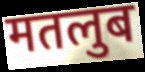
मतलुब